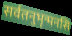
सर्वतनुभृन्मनसि